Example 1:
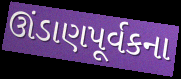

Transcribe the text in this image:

ઊંડાણપૂર્વકના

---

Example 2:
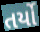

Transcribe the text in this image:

તર્યો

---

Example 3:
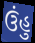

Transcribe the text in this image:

ઉંહુ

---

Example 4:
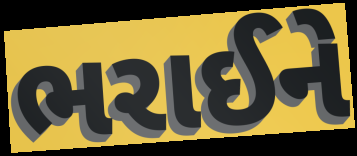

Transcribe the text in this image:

ભરાઈને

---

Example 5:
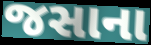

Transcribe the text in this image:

જસાના